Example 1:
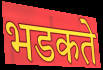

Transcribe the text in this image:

भडकते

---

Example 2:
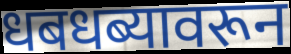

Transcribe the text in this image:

धबधब्यावरून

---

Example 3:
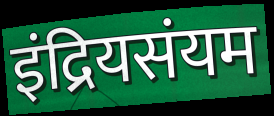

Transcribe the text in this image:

इंद्रियसंयम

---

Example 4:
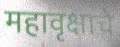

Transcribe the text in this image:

महावृक्षाचे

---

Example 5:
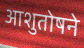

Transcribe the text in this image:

आशुतोषने